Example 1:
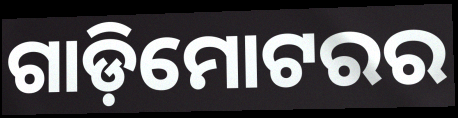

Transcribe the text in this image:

ଗାଡ଼ିମୋଟରର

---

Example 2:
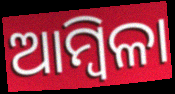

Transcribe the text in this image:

ଆମ୍ବିଳା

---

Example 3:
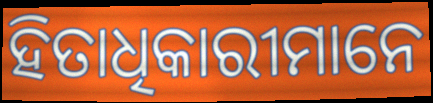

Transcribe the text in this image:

ହିତାଧିକାରୀମାନେ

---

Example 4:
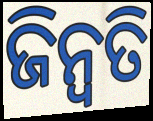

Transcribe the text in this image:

ଜିନ୍ୱତି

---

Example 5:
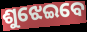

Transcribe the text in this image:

ଶୁଝେଇବେ